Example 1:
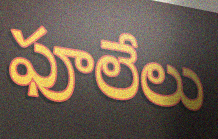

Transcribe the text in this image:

ఫూలేలు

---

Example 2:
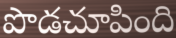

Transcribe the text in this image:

పొడచూపింది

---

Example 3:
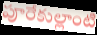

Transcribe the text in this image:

పూరేకుల్లాంటి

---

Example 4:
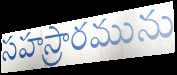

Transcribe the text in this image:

సహస్రారమును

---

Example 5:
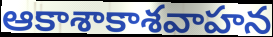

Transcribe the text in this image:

ఆకాశాకాశవాహన